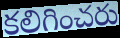
కలిగించరు